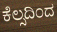
ಕೆಲ್ಸದಿಂದ